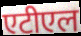
एटीएल